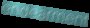
endearment